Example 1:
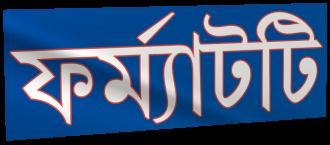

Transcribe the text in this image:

ফর্ম্যাটটি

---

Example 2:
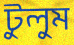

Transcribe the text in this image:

টুলুম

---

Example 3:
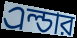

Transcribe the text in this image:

এল্ডার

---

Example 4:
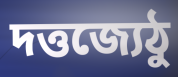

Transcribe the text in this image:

দত্তজ্যেঠু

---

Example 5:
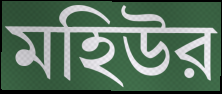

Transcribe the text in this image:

মহিউর